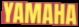
YAMAHA